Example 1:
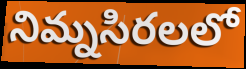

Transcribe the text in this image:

నిమ్నసిరలలో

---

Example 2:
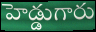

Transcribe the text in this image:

హెడ్డుగారు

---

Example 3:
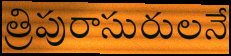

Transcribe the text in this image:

త్రిపురాసురులనే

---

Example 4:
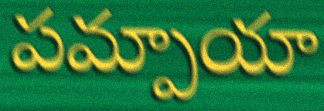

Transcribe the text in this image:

పమ్పాయా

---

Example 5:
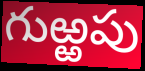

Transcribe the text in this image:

గుఱ్ఱపు